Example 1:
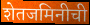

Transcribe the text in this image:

शेतजमिनीची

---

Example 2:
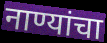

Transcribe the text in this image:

नाण्यांचा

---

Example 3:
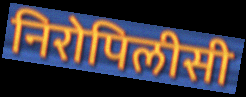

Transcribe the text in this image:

निरोपिलीसी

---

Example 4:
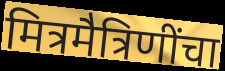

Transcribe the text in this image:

मित्रमैत्रिणींचा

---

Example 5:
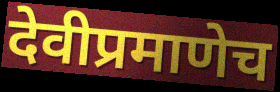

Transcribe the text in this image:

देवीप्रमाणेच